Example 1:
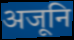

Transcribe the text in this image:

अजूनि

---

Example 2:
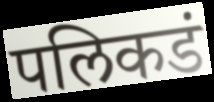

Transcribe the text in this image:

पलिकडं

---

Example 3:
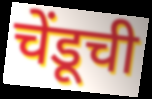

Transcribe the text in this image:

चेंडूची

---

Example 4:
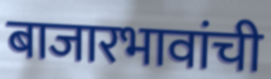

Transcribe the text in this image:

बाजारभावांची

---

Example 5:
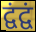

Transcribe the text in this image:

द्वंद्वं